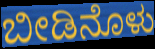
ಬೀಡಿನೊಳು